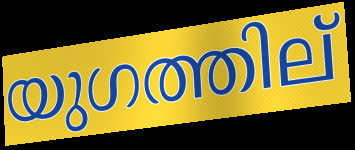
യുഗത്തില്